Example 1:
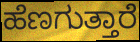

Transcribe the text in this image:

ಹೆಣಗುತ್ತಾರೆ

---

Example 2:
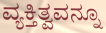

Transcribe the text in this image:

ವ್ಯಕ್ತಿತ್ವವನ್ನೂ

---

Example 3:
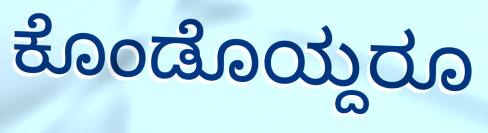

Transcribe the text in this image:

ಕೊಂಡೊಯ್ದರೂ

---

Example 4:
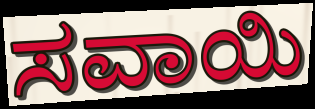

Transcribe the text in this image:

ಸವಾಯಿ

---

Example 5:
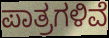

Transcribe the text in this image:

ಪಾತ್ರಗಳಿವೆ